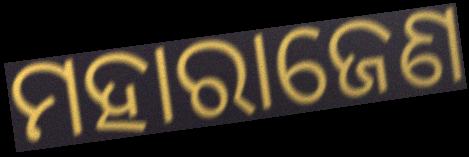
ମହାରାଜେଣ